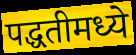
पद्धतीमध्ये